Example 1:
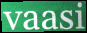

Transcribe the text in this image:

vaasi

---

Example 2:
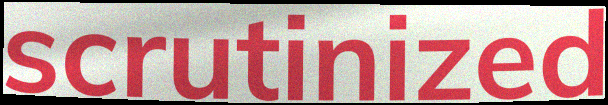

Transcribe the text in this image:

scrutinized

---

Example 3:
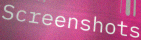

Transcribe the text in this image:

Screenshots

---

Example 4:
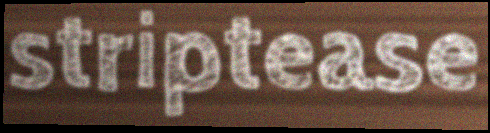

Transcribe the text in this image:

striptease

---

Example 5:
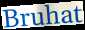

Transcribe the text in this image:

Bruhat